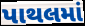
પાથલમાં